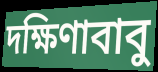
দক্ষিণাবাবু